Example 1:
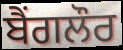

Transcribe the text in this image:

ਬੈੰਗਲੌਰ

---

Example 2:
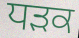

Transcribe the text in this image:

ਧਡ਼ਕ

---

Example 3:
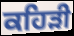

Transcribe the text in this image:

ਕਹਿੜੀ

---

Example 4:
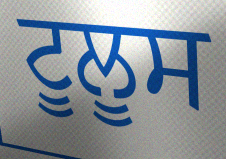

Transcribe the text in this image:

ਟੂਲੂਸ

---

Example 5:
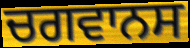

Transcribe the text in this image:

ਚਗਵਾਨਸ